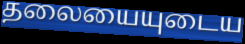
தலையையுடைய